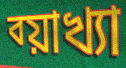
ব্য়াখ্যা